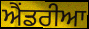
ਐਂਡਰੀਆ